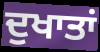
ਦੁਖਾਤਾਂ